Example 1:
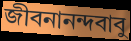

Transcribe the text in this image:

জীবনানন্দবাবু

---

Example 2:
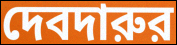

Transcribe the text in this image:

দেবদারুর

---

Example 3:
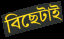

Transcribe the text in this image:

বিছেটাই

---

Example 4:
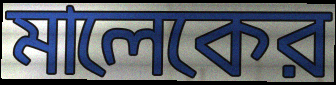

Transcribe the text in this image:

মালেকের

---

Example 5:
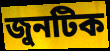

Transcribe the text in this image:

জুনটিক